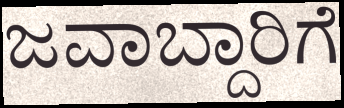
ಜವಾಬ್ದಾರಿಗೆ